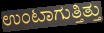
ಉಂಟಾಗುತ್ತಿತ್ತು